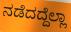
ನಡೆದದ್ದೆಲ್ಲಾ